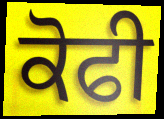
ਕੋਫੀ